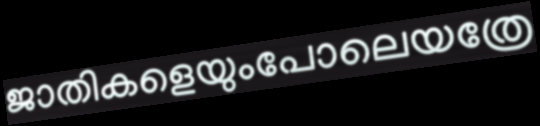
ജാതികളെയുംപോലെയത്രേ